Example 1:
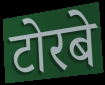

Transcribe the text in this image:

टोरबे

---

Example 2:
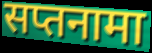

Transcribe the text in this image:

सप्तनामा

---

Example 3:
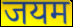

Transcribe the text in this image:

जयम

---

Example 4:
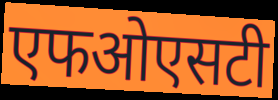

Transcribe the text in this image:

एफओएसटी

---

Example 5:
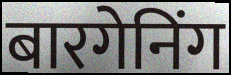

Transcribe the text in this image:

बारगेनिंग